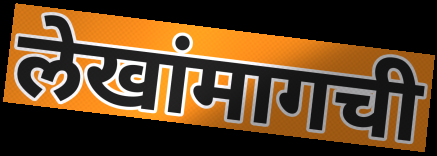
लेखांमागची